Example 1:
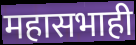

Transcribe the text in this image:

महासभाही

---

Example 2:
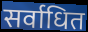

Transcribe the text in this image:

सर्वाधित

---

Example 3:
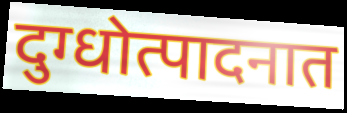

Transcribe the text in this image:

दुग्धोत्पादनात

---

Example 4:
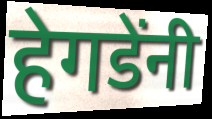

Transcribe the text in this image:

हेगडेंनी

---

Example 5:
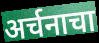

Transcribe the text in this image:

अर्चनाचा